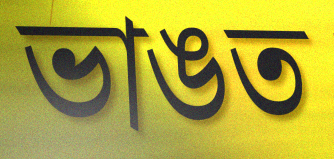
ভাঙত